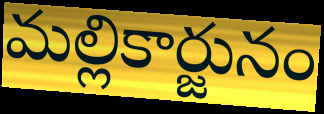
మల్లికార్జునం